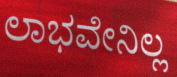
ಲಾಭವೇನಿಲ್ಲ